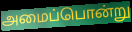
அமைப்பொன்று